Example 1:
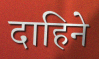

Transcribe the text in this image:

दाहिने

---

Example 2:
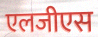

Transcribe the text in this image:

एलजीएस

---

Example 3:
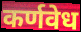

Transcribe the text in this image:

कर्णवेध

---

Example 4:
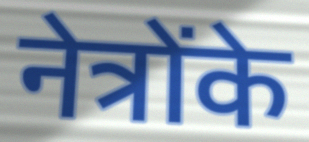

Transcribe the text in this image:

नेत्रोंके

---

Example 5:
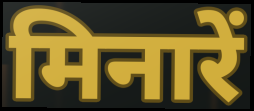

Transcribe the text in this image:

मिनारें